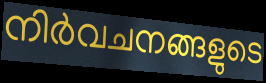
നിർവചനങ്ങളുടെ